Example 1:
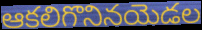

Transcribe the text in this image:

ఆకలిగొనినయెడల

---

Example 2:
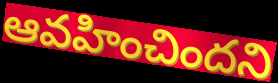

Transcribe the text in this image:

ఆవహించిందని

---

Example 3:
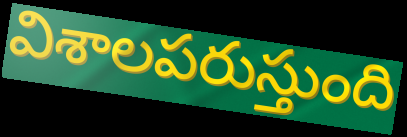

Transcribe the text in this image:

విశాలపరుస్తుంది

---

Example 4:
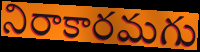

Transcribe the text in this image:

నిరాకారమగు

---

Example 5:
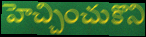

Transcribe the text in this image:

హెచ్చించుకొని